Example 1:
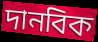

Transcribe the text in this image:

দানবিক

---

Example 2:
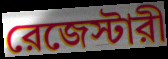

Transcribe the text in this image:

রেজেস্টারী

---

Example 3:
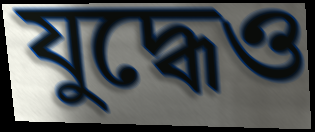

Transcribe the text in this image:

যুদ্ধেও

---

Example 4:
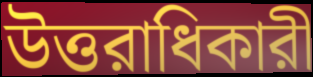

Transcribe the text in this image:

উত্তরাধিকারী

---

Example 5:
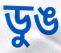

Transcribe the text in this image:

ডুঙ